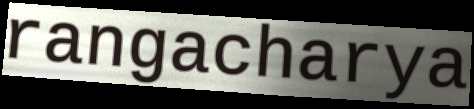
rangacharya